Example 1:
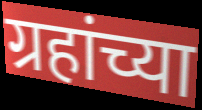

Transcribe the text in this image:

ग्रहांच्या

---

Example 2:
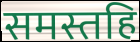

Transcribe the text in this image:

समस्तहि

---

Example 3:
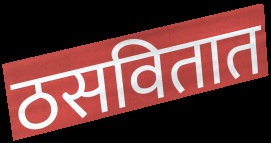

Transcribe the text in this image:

ठसवितात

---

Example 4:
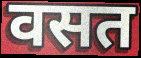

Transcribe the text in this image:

वसत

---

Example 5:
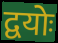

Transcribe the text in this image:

द्वयोः